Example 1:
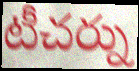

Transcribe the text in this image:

టీచర్ను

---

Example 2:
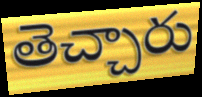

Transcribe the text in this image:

తెచ్చారు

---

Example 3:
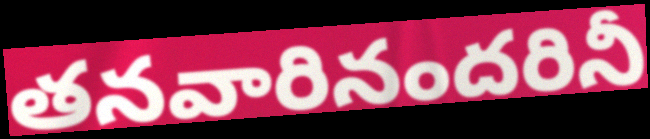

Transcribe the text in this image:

తనవారినందరినీ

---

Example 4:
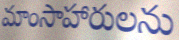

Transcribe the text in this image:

మాంసాహారులను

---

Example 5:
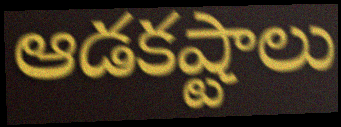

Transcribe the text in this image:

ఆడకష్టాలు